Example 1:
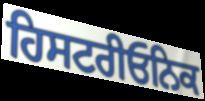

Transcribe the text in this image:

ਹਿਸਟਰੀਓਨਿਕ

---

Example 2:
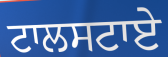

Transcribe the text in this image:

ਟਾਲਸਟਾਏ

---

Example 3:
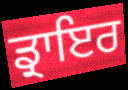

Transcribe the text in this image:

ਡ੍ਰਾਇਰ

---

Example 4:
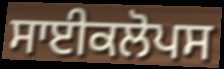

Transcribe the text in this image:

ਸਾਈਕਲੋਪਸ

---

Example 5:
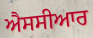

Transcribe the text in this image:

ਐਸਸੀਆਰ